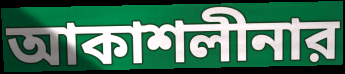
আকাশলীনার